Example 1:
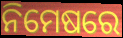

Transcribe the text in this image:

ନିମେଷରେ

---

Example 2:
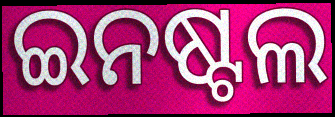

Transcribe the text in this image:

ଇନଷ୍ଟଲ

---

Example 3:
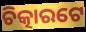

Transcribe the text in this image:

ଚିତ୍କାରଟେ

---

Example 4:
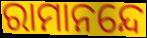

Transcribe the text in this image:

ରାମାନନ୍ଦେ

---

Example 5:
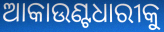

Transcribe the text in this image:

ଆକାଉଣ୍ଟଧାରୀକୁ